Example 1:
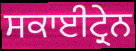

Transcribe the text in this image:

ਸਕਾਈਟ੍ਰੇਨ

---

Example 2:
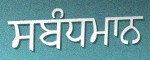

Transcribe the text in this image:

ਸਬੰਧਮਾਨ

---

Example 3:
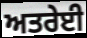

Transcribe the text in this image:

ਅਤਰੇਈ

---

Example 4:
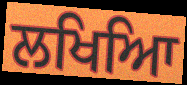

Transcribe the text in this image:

ਲਖਿਆਿ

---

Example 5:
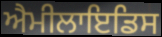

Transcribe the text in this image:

ਐਮੀਲਾਇਡਿਸ